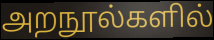
அறநூல்களில்